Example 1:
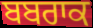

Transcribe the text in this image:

ਬਬਰਾਕ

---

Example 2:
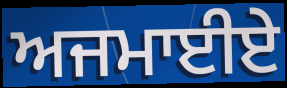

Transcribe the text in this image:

ਅਜਮਾਈਏ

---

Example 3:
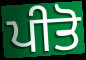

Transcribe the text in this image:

ਪੀਤੋ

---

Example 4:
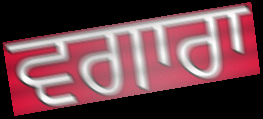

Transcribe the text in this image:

ਵਗਾਰਾ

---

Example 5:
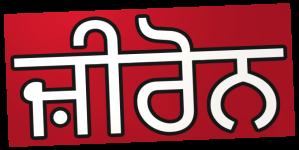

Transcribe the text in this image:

ਜ਼ੀਰੋਨ